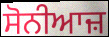
ਸੋਨੀਆਜ਼